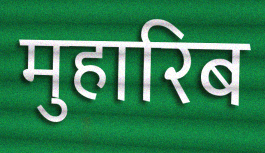
मुहारिब